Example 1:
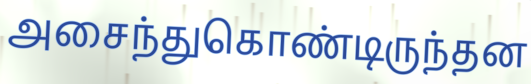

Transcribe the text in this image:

அசைந்துகொண்டிருந்தன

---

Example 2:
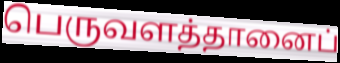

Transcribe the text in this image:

பெருவளத்தானைப்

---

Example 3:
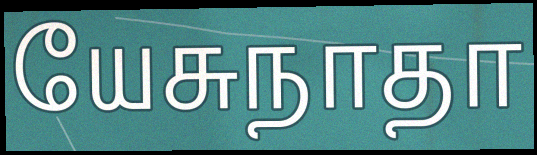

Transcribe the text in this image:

யேசுநாதா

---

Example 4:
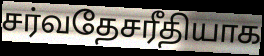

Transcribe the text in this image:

சர்வதேசரீதியாக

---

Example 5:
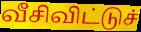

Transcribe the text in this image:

வீசிவிட்டுச்